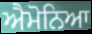
ਐਮੋਨਿਆ